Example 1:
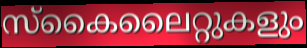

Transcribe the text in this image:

സ്കൈലൈറ്റുകളും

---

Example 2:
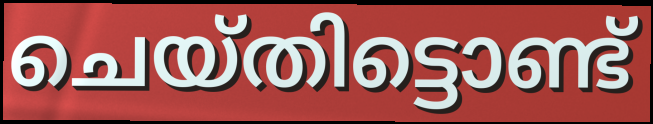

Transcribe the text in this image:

ചെയ്തിട്ടൊണ്ട്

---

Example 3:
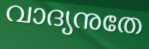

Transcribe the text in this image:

വാദ്യനുതേ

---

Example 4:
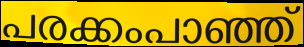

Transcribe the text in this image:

പരക്കംപാഞ്ഞ്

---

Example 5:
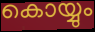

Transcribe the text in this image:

കൊയ്യും